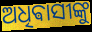
ଅଧିଵାସୀଙ୍କୁ